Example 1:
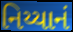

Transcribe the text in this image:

નિય્યાનં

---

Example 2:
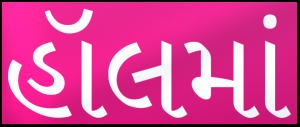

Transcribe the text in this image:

હૉલમાં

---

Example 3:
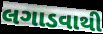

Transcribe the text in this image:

લગાડવાથી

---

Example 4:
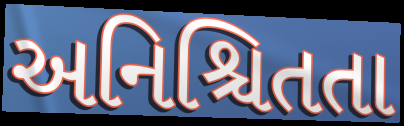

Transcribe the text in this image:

અનિશ્ચિતતા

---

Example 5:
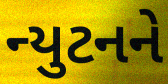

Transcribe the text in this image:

ન્યુટનને